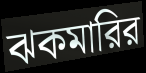
ঝকমারির